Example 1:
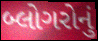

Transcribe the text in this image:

બ્લોગરોનું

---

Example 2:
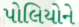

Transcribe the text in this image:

પોલિયોને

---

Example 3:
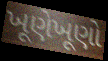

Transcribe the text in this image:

ખૂણેખૂણો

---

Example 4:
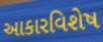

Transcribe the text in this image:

આકારવિશેષ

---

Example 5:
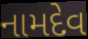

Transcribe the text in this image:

નામદેવ